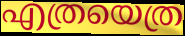
എത്രയെത്ര